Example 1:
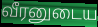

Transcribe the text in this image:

வீரனுடைய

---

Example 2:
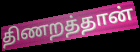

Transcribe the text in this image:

திணறத்தான்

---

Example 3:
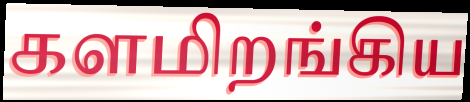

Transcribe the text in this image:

களமிறங்கிய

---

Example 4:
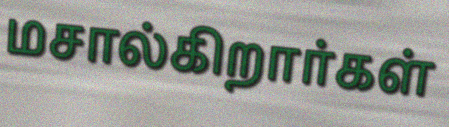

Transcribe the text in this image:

மசால்கிறார்கள்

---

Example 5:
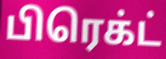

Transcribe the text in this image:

பிரெக்ட்